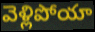
వెళ్లిపోయా